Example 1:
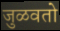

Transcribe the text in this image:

जुळवतो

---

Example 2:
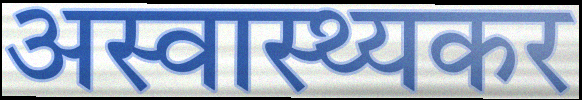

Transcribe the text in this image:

अस्वास्थ्यकर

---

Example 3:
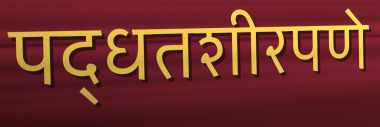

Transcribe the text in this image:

पद्धतशीरपणे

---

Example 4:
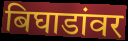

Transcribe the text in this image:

बिघाडांवर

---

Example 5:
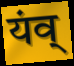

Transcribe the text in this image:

यंव्